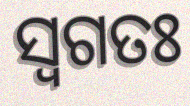
ସ୍ଵଗତଃ